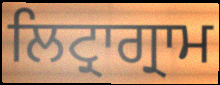
ਲਿਟ੍ਰਾਗ੍ਰਾਮ